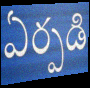
ఏర్పడి